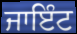
ਜਾਇੰਟ